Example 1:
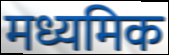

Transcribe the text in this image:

मध्यमिक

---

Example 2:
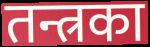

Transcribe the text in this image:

तन्त्रका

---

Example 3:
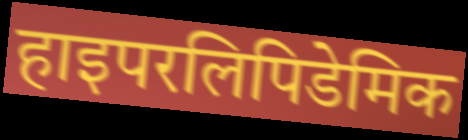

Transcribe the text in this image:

हाइपरलिपिडेमिक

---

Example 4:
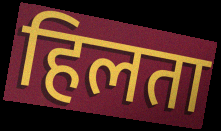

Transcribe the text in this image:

हिलता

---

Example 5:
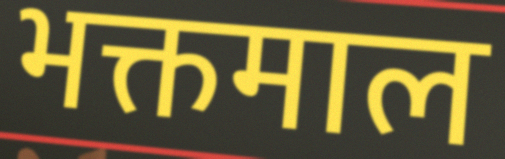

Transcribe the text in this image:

भक्तमाल